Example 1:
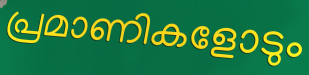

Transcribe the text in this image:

പ്രമാണികളോടും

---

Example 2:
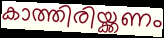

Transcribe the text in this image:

കാത്തിരിയ്ക്കണം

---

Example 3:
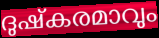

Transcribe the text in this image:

ദുഷ്‌കരമാവും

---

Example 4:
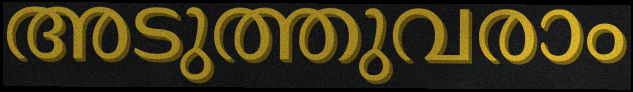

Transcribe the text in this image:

അടുത്തുവരാം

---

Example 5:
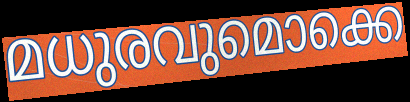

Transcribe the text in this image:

മധുരവുമൊക്കെ